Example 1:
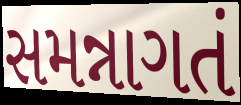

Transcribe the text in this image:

સમન્નાગતં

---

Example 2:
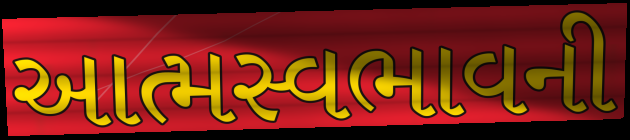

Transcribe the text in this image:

આત્મસ્વભાવની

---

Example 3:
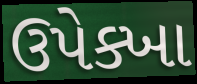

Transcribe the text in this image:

ઉપેક્ખા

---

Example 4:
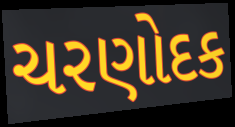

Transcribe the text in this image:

ચરણોદક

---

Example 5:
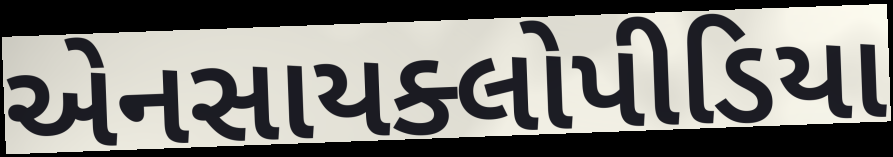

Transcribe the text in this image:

એનસાયક્લોપીડિયા